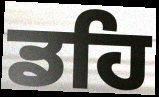
ਡਹਿ